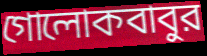
গোলোকবাবুর